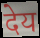
देय